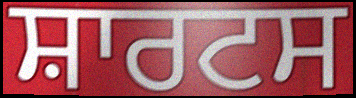
ਸ਼ਾਰਟਸ